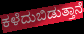
ಕಳೆದುಬಿಡುತ್ತಾನೆ